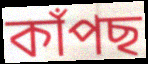
কাঁপছ